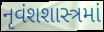
નૃવંશશાસ્ત્રમાં